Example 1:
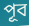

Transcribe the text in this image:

পূব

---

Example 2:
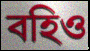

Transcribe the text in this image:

বহিও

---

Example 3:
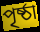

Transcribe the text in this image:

পৃষ্ঠা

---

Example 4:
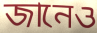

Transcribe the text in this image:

জানেও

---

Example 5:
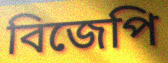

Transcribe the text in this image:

বিজেপি